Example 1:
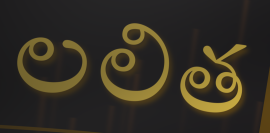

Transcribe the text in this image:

లలిత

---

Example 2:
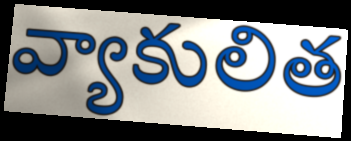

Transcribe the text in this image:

వ్యాకులిత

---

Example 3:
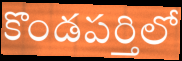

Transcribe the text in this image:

కొండపర్తిలో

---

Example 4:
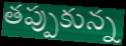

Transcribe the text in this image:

తప్పుకున్న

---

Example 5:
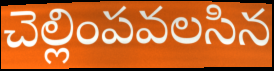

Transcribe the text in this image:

చెల్లింపవలసిన